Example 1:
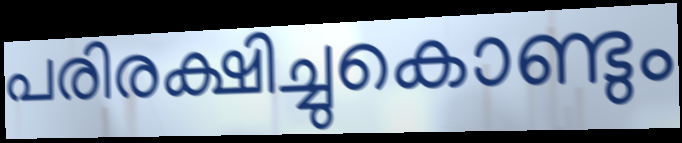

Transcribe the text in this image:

പരിരക്ഷിച്ചുകൊണ്ടും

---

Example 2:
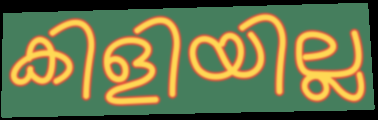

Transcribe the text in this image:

കിളിയില്ല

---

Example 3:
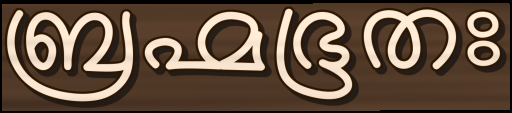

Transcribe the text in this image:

ബ്രഹ്മഭൂതഃ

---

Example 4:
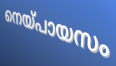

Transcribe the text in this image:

നെയ്പായസം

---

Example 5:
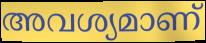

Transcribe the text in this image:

അവശ്യമാണ്